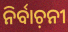
ନିର୍ବାଚ଼ନୀ